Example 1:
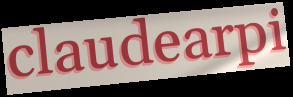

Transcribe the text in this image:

claudearpi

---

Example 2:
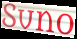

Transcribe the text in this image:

Suno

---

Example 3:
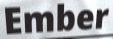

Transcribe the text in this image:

Ember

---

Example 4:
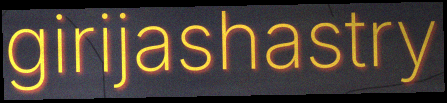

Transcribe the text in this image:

girijashastry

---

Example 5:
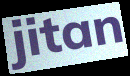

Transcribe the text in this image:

jitan